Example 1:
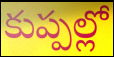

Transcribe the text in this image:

కుప్పల్లో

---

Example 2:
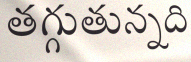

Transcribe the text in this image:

తగ్గుతున్నది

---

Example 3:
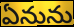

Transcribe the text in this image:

ఏనును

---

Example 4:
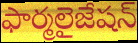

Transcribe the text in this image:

ఫార్మలైజేషన్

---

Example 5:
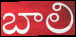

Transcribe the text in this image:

బాలి